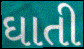
ઘાતી